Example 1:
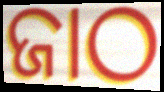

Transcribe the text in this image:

ଜାଠ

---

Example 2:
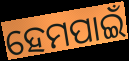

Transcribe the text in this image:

ହେମପାଇଁ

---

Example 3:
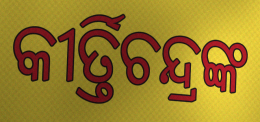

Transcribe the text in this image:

କୀର୍ତ୍ତିଚନ୍ଦ୍ରଙ୍କ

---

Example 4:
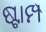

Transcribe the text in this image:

ଷ୍ଟାମ୍ପ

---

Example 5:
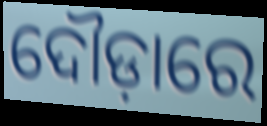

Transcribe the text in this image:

ଦୌଡ଼ାରେ